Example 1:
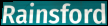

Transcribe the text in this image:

Rainsford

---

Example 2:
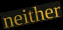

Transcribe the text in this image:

neither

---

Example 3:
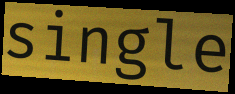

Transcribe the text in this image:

single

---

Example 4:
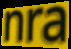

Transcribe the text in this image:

nra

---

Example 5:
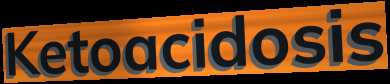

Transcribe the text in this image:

Ketoacidosis